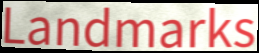
Landmarks